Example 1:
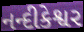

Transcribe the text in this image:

નન્દીકેશ્વર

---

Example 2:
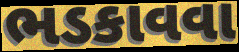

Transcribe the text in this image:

ભડકાવવા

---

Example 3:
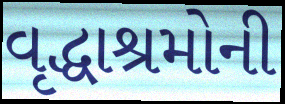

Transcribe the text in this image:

વૃદ્ધાશ્રમોની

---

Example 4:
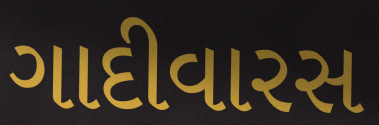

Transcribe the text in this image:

ગાદીવારસ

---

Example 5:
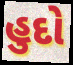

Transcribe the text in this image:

હુદો